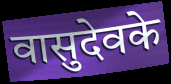
वासुदेवके